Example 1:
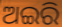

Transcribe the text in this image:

ଅଇରି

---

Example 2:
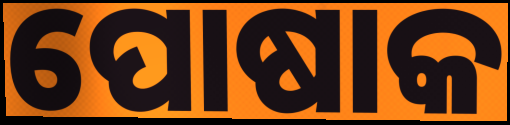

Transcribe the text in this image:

ପୋଷାକ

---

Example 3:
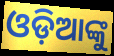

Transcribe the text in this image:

ଓଡ଼ିଆଙ୍କୁ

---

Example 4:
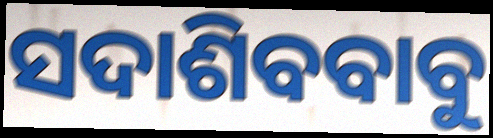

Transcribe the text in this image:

ସଦାଶିବବାବୁ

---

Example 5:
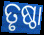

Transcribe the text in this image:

ତୃଷ୍ଠା